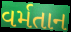
વર્મતાન